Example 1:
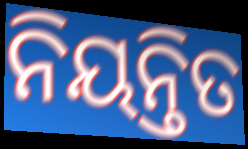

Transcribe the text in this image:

ନିୟନ୍ତିତ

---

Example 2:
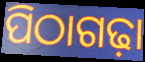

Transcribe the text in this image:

ପିଠାଗଢ଼ା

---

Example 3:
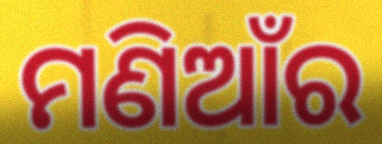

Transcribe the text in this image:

ମଣିଆଁର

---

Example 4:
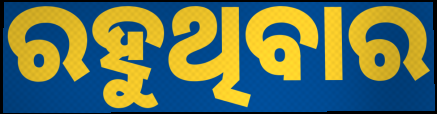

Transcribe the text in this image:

ରହୁଥିବାର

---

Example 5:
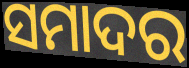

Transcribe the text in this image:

ସମାଦର